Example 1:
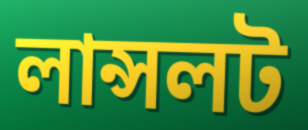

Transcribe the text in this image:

লান্সলট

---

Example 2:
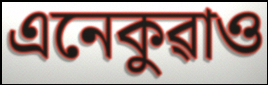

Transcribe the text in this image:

এনেকুৱাও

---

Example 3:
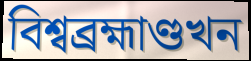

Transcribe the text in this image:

বিশ্বব্ৰহ্মাণ্ডখন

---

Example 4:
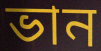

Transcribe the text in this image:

ভান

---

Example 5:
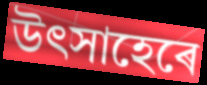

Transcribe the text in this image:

উৎসাহেৰে